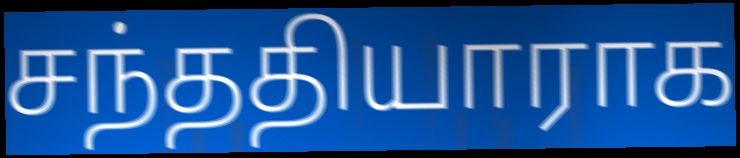
சந்ததியாராக